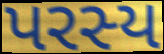
પરસ્ય